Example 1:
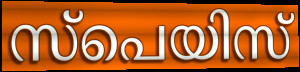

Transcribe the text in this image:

സ്പെയിസ്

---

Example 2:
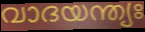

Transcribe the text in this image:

വാദയന്ത്യഃ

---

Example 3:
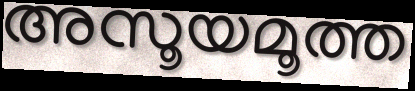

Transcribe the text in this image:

അസൂയമൂത്ത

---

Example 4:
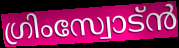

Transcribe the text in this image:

ഗ്രിംസ്വോട്ൻ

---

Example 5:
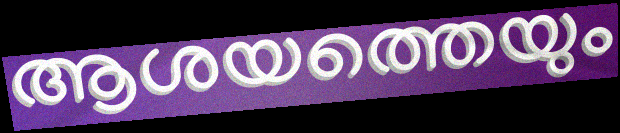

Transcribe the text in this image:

ആശയത്തെയും